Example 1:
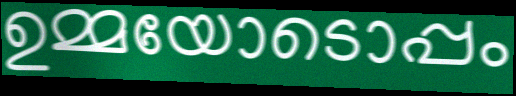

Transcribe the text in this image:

ഉമ്മയോടൊപ്പം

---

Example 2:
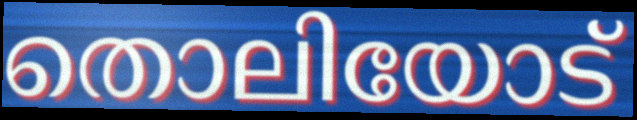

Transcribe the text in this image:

തൊലിയോട്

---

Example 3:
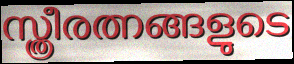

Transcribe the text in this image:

സ്ത്രീരത്നങ്ങളുടെ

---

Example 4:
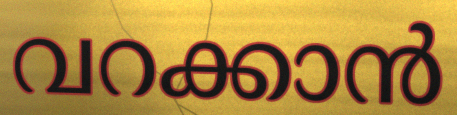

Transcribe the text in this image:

വറക്കാൻ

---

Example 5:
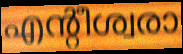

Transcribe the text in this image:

എന്റീശ്വരാ